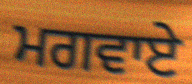
ਮਗਵਾਏ